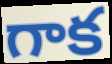
గాక